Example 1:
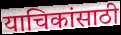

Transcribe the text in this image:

याचिकांसाठी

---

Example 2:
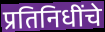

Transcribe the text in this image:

प्रतिनिधींचे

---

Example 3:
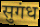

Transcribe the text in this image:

सुगंध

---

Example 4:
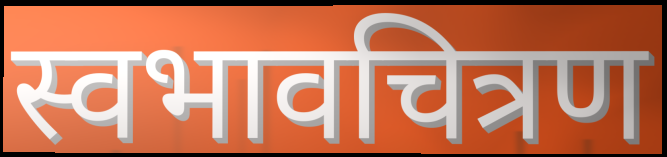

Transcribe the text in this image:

स्वभावचित्रण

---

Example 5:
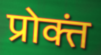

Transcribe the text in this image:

प्रोक्तं